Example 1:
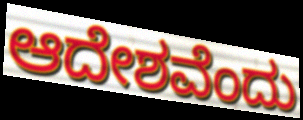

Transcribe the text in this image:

ಆದೇಶವೆಂದು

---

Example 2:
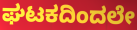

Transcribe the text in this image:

ಘಟಕದಿಂದಲೇ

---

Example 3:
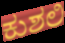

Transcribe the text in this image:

ಕುಶಲಿ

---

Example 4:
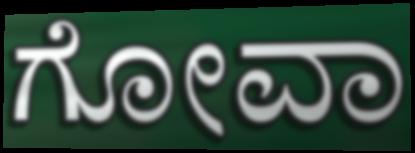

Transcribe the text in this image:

ಗೋವಾ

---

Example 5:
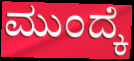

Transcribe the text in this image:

ಮುಂದ್ಕೆ